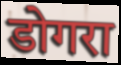
डोगरा